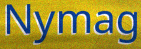
Nymag